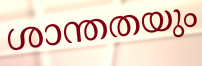
ശാന്തതയും